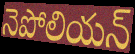
నెపోలియన్